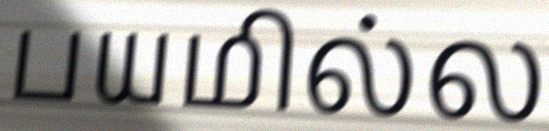
பயமில்ல